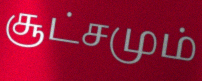
சூட்சமும்